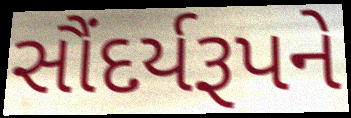
સૌંદર્યરૂપને